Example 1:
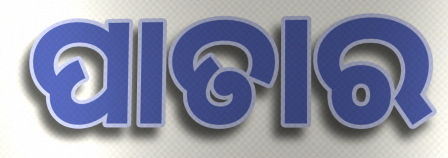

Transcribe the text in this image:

ପାତାର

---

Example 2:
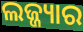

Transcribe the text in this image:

ଲଜ୍ଜ୍ୟାର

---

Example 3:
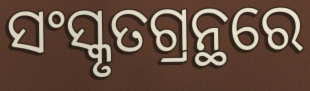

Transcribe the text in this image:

ସଂସ୍କୃତଗ୍ରନ୍ଥରେ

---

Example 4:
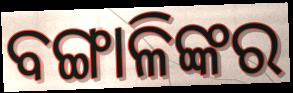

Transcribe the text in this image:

ବଙ୍ଗାଳିଙ୍କର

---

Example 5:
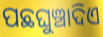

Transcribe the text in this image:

ପଛଘୁଞ୍ଚାଦିଏ